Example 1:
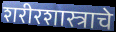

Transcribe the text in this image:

शरीरशास्त्राचे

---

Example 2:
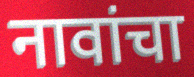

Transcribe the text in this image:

नावांचा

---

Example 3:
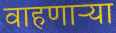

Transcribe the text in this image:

वाहणाऱ्या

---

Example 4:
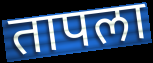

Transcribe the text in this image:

तापला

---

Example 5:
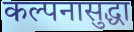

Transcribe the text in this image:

कल्पनासुद्धा